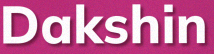
Dakshin